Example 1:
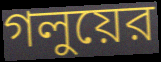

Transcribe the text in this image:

গলুয়ের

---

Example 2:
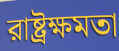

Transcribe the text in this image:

রাষ্ট্রক্ষমতা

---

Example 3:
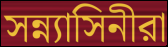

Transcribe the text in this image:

সন্ন্যাসিনীরা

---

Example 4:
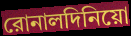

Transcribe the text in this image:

রোনালদিনিয়ো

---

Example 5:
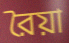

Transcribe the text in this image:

রৈয়া